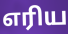
எரிய